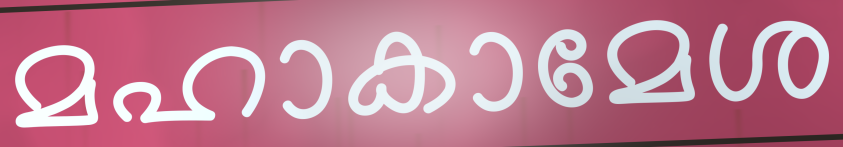
മഹാകാമേശ